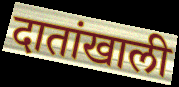
दातांखाली